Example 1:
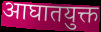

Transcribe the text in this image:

आघातयुक्त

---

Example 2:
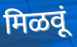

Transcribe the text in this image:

मिळवूं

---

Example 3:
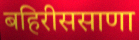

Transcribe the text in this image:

बहिरीससाणा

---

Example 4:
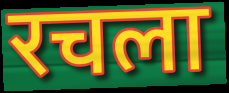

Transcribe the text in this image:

रचला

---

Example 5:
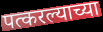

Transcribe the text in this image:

पत्करल्याच्या